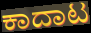
ಕಾದಾಟ